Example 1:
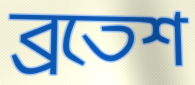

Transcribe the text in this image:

ব্রতেশ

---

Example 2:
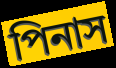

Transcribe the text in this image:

পিনাস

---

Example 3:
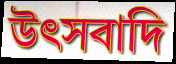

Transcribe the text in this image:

উৎসবাদি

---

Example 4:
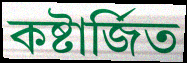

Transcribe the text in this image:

কষ্টার্জিত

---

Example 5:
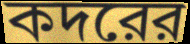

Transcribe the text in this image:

কদরের